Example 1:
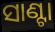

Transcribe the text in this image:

ସାଣ୍ଟା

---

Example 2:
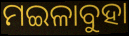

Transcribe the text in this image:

ମଇଳାବୁହା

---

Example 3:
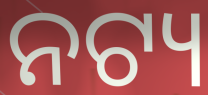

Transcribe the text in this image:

ନଟ୍ୟ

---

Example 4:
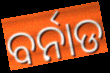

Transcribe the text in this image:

ବର୍ନାଡ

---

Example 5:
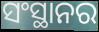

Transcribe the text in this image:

ସଂସ୍ଥାନର